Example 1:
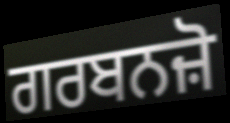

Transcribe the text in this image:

ਗਰਬਨਜ਼ੋ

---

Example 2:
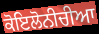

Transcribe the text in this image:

ਕੋਇਲੋਨੀਚੀਆ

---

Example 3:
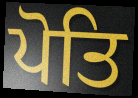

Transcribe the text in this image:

ਪੋਤਿ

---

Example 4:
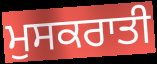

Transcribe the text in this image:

ਮੁਸਕਰਾਤੀ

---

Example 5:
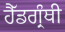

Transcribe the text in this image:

ਹੈੱਡਗ੍ਰੰਥੀ